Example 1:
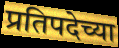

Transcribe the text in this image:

प्रतिपदेच्या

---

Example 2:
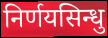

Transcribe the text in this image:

निर्णयसिन्धु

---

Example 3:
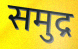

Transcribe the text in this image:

समुद्र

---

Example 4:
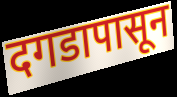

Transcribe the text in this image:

दगडापासून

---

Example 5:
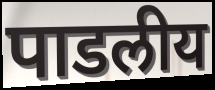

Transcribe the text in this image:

पाडलीय